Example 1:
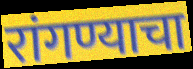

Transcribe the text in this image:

रांगण्याचा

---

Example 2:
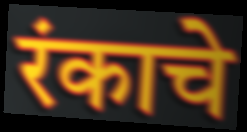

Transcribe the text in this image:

रंकाचे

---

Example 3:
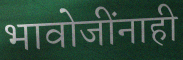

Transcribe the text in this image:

भावोजींनाही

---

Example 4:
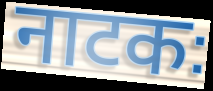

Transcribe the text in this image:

नाटकः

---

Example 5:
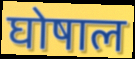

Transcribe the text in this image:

घोषाल